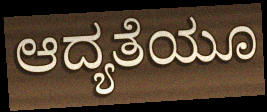
ಆದ್ಯತೆಯೂ